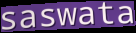
saswata